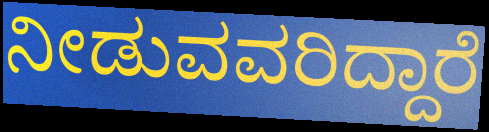
ನೀಡುವವರಿದ್ದಾರೆ